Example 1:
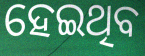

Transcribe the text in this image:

ହେଇଥିବ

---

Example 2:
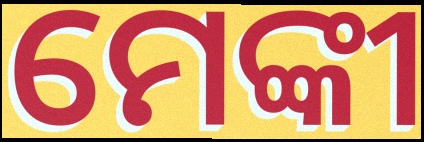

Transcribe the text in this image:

ମେଙ୍କୀ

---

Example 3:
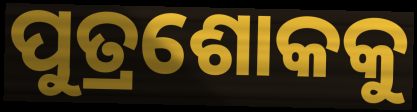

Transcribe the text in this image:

ପୁତ୍ରଶୋକକୁ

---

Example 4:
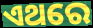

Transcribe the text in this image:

ଏଥରେ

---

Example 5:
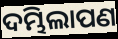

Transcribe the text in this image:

ଦମ୍ଭିଲାପଣ